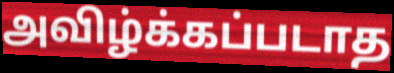
அவிழ்க்கப்படாத